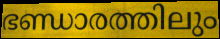
ഭണ്ഡാരത്തിലും